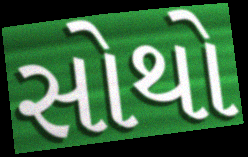
સોથો